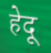
हेदू